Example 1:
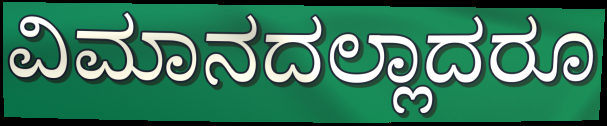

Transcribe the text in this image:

ವಿಮಾನದಲ್ಲಾದರೂ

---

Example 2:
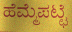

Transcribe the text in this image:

ಹೆಮ್ಮೆಪಟ್ಟೆ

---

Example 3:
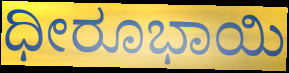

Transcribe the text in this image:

ಧೀರೂಭಾಯಿ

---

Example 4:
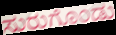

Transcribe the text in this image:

ಸುರುಗೊಂಡು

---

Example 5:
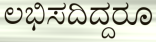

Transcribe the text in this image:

ಲಭಿಸದಿದ್ದರೂ